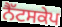
ਨੈੱਟਸਕੇਪ